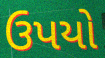
ઉપયો